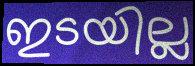
ഇടയില്ല